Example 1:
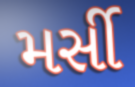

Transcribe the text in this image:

મર્સી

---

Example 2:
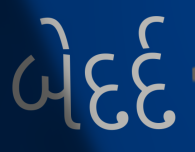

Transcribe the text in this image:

બેદર્દ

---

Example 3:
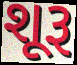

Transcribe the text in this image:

શૂરૂ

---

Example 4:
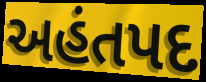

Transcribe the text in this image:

અહંતપદ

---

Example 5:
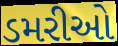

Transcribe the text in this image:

ડમરીઓ